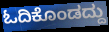
ಓದಿಕೊಂಡದ್ದು